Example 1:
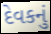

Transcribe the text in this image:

દેવકનું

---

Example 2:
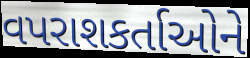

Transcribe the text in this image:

વપરાશકર્તાઓને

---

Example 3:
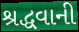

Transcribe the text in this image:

શ્રદ્ધવાની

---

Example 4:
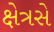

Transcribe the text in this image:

ક્ષેત્રસે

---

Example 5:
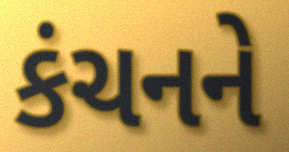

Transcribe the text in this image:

કંચનને